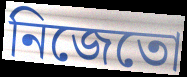
নিজেতো